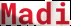
Madi